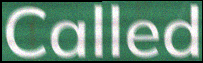
Called